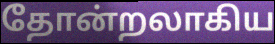
தோன்றலாகிய